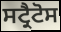
ਸਟ੍ਰੈਟੋਸ